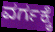
ವರ್ಗಕ್ಕೆ